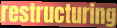
restructuring